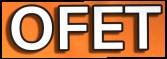
OFET